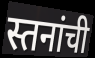
स्तनांची